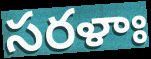
సరళాః